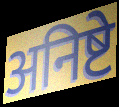
अनिष्टे